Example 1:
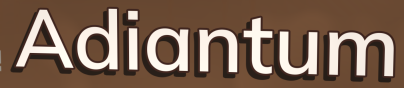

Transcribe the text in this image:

Adiantum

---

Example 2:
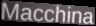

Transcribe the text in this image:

Macchina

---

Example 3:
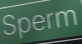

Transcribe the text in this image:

Sperm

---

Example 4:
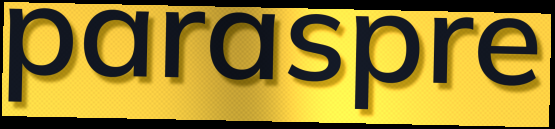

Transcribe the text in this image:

paraspre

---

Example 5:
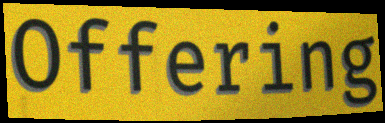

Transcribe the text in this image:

Offering